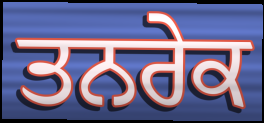
ਤਨਰੇਕ